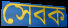
সেবক